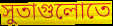
সুতাগুলোতে